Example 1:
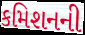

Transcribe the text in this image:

કમિશનની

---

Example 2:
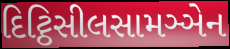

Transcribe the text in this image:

દિટ્ઠિસીલસામઞ્ઞેન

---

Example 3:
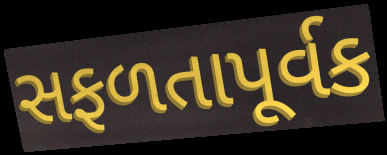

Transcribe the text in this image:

સફળતાપૂર્વક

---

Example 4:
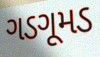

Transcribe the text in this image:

ગડગૂમડ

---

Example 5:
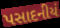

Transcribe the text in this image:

પસાદનીયં